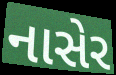
નાસેર